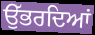
ਉੱਭਰਦਿਆਂ